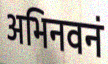
अभिनवनं